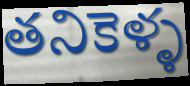
తనికెళ్ళ